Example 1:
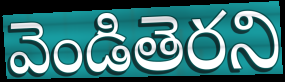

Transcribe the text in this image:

వెండితెరని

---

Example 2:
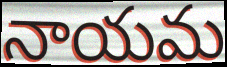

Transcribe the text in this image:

నాయమ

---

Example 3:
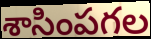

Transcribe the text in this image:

శాసింపగల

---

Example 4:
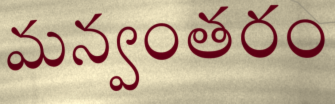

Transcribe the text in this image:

మన్వంతరం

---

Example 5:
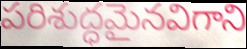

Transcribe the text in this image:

పరిశుద్ధమైనవిగాని